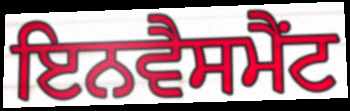
ਇਨਵੈਸਮੈਂਟ